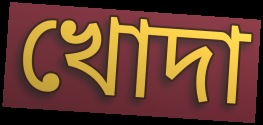
খোদা